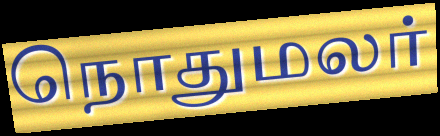
நொதுமலர்